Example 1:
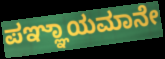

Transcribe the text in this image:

ಪಞ್ಞಾಯಮಾನೇ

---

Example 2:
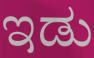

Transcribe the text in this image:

ಇಡು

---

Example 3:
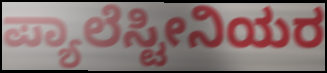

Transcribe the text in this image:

ಪ್ಯಾಲೆಸ್ಟೀನಿಯರ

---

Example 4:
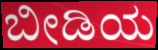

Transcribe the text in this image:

ಬೀಡಿಯ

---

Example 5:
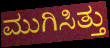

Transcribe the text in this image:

ಮುಗಿಸಿತ್ತು